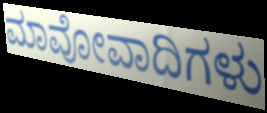
ಮಾವೋವಾದಿಗಳು